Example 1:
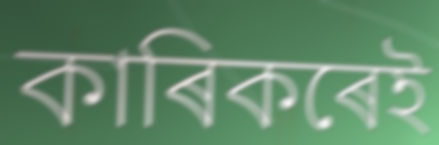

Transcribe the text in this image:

কাৰিকৰেই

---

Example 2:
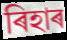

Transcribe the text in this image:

ৰিহাৰ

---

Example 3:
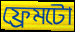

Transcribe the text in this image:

ফ্ৰেমটো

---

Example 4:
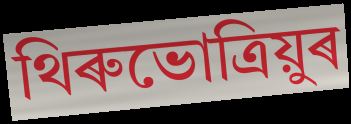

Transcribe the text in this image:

থিৰুভোত্ৰিয়ুৰ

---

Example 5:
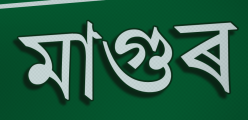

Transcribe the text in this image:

মাগুৰ